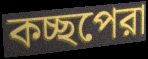
কচ্ছপেরা